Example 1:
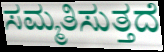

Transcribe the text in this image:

ಸಮ್ಮತಿಸುತ್ತದೆ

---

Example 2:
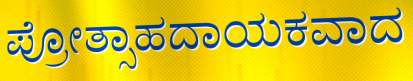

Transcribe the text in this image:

ಪ್ರೋತ್ಸಾಹದಾಯಕವಾದ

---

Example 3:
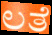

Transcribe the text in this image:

ಲತೆ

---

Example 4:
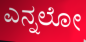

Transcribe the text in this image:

ಎನ್ನಲೋ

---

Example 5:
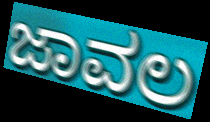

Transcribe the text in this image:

ಜಾವಲ